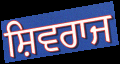
ਸ਼ਿਵਰਾਜ